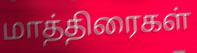
மாத்திரைகள்